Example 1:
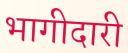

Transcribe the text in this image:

भागीदारी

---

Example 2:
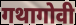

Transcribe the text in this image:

गथागोवी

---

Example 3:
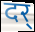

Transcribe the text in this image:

दर्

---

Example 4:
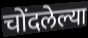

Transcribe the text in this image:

चोंदलेल्या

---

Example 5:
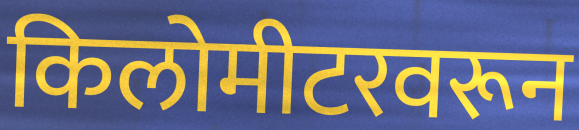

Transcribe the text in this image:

किलोमीटरवरून